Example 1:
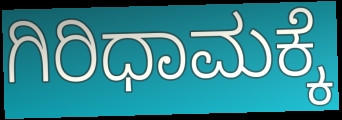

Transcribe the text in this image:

ಗಿರಿಧಾಮಕ್ಕೆ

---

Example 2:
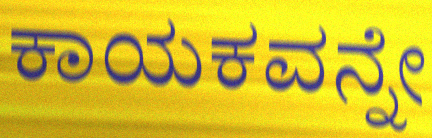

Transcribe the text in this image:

ಕಾಯಕವನ್ನೇ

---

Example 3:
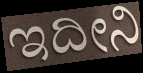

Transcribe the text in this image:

ಇದೀನಿ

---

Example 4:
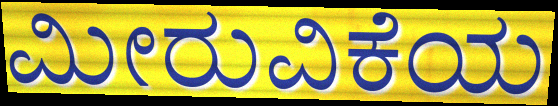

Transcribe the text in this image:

ಮೀರುವಿಕೆಯ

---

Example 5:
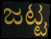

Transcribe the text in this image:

ಜಟ್ಟ